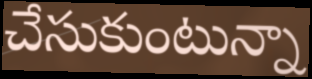
చేసుకుంటున్నా